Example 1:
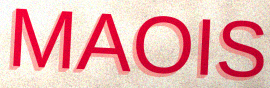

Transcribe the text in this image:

MAOIS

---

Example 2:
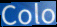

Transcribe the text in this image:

Colo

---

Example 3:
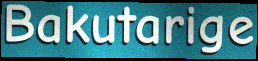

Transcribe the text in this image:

Bakutarige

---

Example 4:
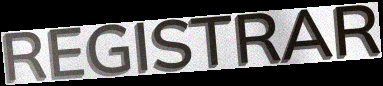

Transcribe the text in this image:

REGISTRAR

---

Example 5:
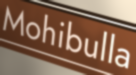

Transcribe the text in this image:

Mohibulla